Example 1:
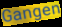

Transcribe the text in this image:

Gangen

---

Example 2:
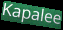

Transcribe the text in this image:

Kapalee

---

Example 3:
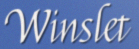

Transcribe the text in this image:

Winslet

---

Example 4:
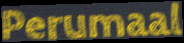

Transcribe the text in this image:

Perumaal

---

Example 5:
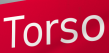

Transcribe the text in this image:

Torso